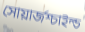
সোয়ার্জশ্চাইল্ড